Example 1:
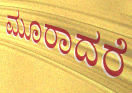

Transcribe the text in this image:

ಮೂರಾದರೆ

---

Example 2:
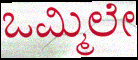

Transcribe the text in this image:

ಒಮ್ಮಿಲೇ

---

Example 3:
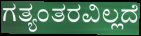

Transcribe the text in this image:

ಗತ್ಯಂತರವಿಲ್ಲದೆ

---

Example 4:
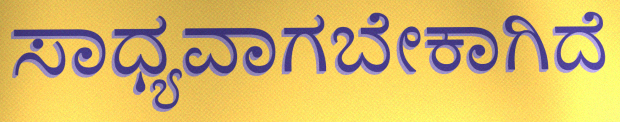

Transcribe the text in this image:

ಸಾಧ್ಯವಾಗಬೇಕಾಗಿದೆ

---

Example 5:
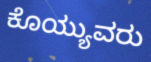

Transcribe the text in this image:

ಕೊಯ್ಯುವರು